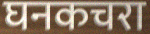
घनकचरा